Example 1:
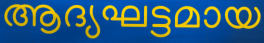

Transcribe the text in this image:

ആദ്യഘട്ടമായ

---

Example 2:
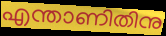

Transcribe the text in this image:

എന്താണിതിനു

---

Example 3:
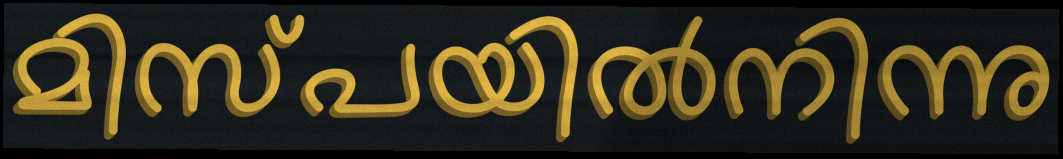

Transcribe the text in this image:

മിസ്പയിൽനിന്നു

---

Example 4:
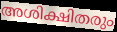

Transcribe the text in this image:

അശിക്ഷിതരും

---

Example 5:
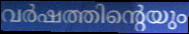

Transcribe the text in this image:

വർഷത്തിന്റെയും